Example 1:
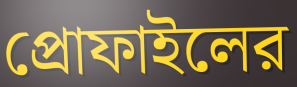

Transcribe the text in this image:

প্রোফাইলের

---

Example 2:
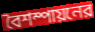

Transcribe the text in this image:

বৈশম্পায়নের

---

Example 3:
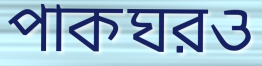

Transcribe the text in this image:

পাকঘরও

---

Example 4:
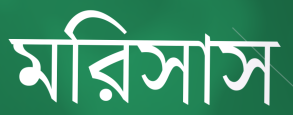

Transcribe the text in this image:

মরিসাস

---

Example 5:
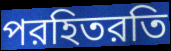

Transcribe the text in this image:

পরহিতরতি